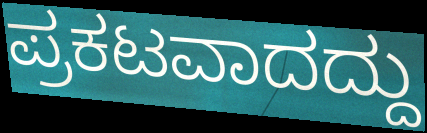
ಪ್ರಕಟವಾದದ್ದು